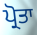
ਪ੍ਰੋਤਾ